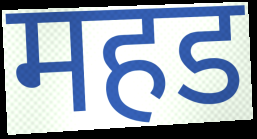
महड